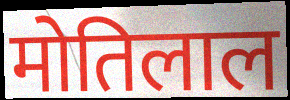
मोतिलाल